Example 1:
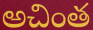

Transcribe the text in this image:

అచింత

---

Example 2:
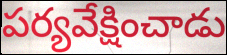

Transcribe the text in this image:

పర్యవేక్షించాడు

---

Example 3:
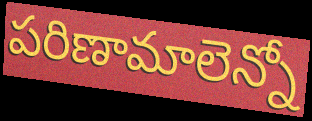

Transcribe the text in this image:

పరిణామాలెన్నో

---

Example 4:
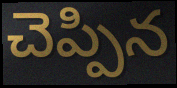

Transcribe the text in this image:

చెప్పిన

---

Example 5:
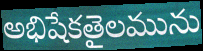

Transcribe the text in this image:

అభిషేకతైలమును